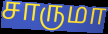
சாருமா